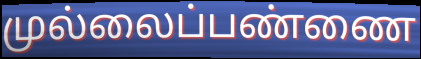
முல்லைப்பண்ணை